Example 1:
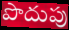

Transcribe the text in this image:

పొదుపు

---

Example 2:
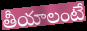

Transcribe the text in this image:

తీయాలంటే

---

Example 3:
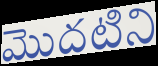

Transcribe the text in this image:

మొదటిని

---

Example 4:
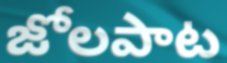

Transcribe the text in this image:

జోలపాట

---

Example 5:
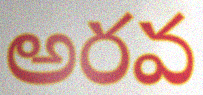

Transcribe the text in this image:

అరవ